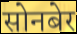
सोनबेर